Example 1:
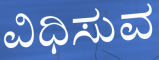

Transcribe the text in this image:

ವಿಧಿಸುವ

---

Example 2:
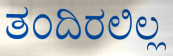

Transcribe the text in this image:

ತಂದಿರಲಿಲ್ಲ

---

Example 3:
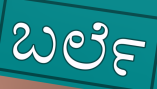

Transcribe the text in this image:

ಬರ್ಲೆ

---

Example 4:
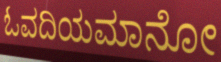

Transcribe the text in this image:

ಓವದಿಯಮಾನೋ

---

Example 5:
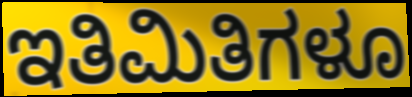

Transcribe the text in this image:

ಇತಿಮಿತಿಗಳೂ